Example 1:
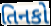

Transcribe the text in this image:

તિનકો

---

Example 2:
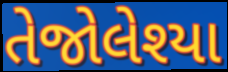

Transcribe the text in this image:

તેજોલેશ્યા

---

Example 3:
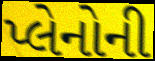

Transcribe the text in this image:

પ્લેનોની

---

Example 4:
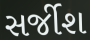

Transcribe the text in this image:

સર્જીશ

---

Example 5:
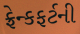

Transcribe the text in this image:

ફ્રેન્કફર્ટની